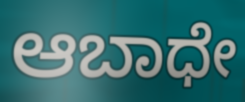
ಆಬಾಧೇ